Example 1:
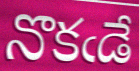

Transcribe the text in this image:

నొకఁడే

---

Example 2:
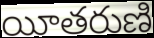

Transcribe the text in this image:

యీతరుణి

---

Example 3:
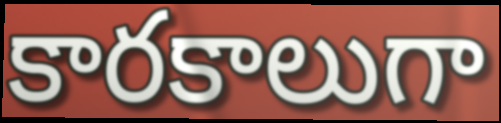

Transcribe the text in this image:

కారకాలుగా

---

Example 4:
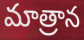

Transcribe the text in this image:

మాత్రాన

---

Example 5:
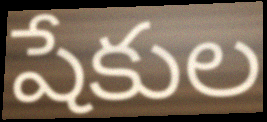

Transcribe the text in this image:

షేకుల